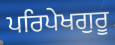
ਪਰਿਪੇਖਗੁਰੂ